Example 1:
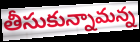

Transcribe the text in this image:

తీసుకున్నామన్న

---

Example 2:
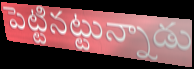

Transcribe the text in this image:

పెట్టినట్టున్నాడు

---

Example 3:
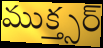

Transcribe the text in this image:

ముక్త్సర్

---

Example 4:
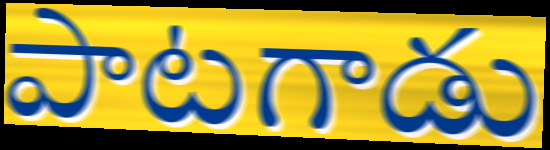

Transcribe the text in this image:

పాటగాడు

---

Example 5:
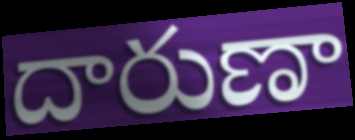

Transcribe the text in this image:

దారుణా